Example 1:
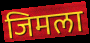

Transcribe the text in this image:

जिमला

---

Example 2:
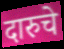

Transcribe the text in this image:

दारुचे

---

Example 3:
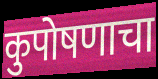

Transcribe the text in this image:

कुपोषणाचा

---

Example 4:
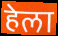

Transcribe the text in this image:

हेला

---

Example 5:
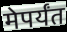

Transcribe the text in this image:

मेपर्यंत